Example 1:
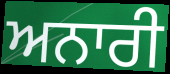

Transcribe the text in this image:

ਅਨਾਰੀ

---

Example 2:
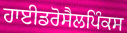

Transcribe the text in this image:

ਹਾਈਡਰੋਸੈਲਪਿੰਕਸ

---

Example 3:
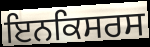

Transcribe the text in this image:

ਇਨਕਿਸਰਸ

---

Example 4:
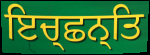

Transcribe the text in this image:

ਇਚ੍ਛਨ੍ਤਿ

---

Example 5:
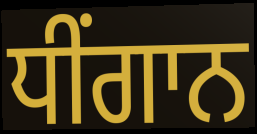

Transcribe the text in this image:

ਧੀਂਗਾਨ